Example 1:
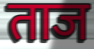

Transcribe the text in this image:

ताज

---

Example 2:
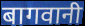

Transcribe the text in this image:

बागवानी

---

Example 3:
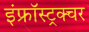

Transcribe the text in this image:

इंफ्रॉस्ट्रक्चर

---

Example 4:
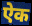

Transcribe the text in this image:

ऐक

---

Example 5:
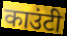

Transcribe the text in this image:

काउंटी